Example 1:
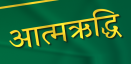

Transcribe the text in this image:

आत्मऋद्धि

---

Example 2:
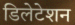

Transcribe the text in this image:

डिलेटेशन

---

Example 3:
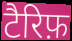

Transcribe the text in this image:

टैरिफ़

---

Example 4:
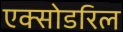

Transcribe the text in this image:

एक्सोडरिल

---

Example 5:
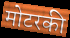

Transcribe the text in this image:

मोटरकी